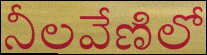
నీలవేణిలో